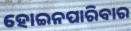
ହୋଇନପାରିବାର